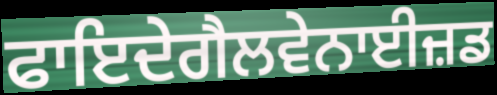
ਫਾਇਦੇਗੈਲਵੇਨਾਈਜ਼ਡ